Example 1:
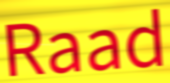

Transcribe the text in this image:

Raad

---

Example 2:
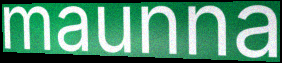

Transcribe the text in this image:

maunna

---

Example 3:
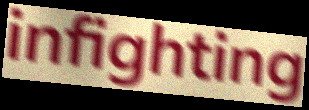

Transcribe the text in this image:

infighting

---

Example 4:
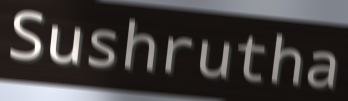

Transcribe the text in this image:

Sushrutha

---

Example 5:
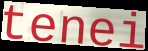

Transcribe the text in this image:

tenei